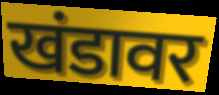
खंडावर